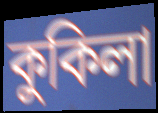
কুকিলা